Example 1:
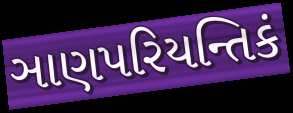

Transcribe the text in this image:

ઞાણપરિયન્તિકં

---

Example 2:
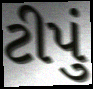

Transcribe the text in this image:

ટીપું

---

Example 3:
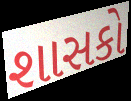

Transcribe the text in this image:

શાસકો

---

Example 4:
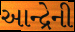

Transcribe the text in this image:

આન્દ્રેની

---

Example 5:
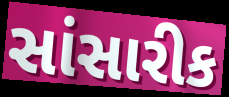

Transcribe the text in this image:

સાંસારીક